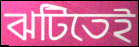
ঝটিতেই